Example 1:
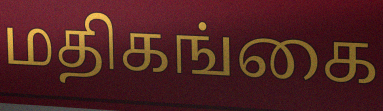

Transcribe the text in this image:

மதிகங்கை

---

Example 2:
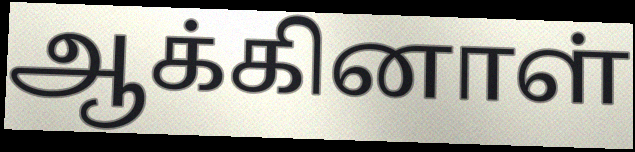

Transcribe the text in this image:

ஆக்கினாள்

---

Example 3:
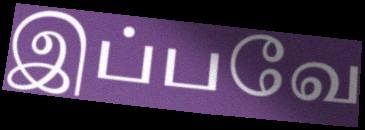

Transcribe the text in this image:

இப்பவே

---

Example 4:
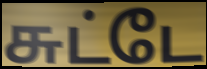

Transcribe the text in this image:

சுட்டே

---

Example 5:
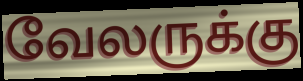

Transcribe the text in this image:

வேலருக்கு